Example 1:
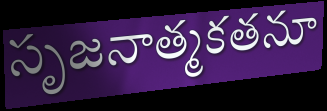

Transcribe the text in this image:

సృజనాత్మకతనూ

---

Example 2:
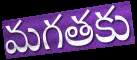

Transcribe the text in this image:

మగతకు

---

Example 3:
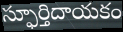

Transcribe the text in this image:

స్ఫూర్తిదాయకం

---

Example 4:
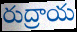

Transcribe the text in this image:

రుద్రాయ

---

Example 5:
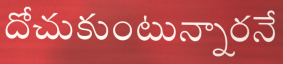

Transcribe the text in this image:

దోచుకుంటున్నారనే